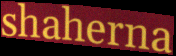
shaherna